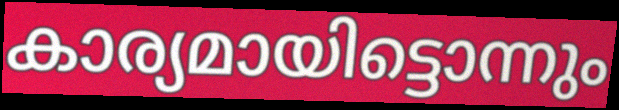
കാര്യമായിട്ടൊന്നും